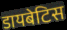
डायबेटिस